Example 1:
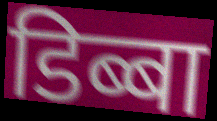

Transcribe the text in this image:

डिब्बा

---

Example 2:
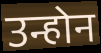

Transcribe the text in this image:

उन्होन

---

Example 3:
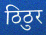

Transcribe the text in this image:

ठिठुर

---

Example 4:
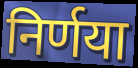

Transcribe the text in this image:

निर्णया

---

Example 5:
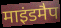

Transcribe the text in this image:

माइंडमैप